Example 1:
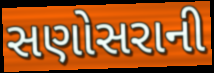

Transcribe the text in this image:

સણોસરાની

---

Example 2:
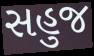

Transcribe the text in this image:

સહુજ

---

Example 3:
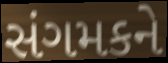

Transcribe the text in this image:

સંગમકને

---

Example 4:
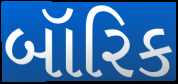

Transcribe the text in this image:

બૉરિક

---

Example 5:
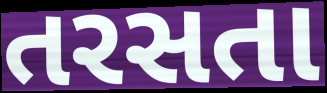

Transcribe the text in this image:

તરસતા